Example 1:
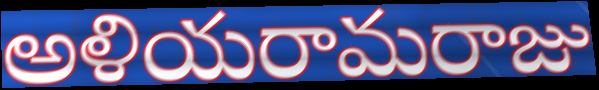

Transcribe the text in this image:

అళియరామరాజు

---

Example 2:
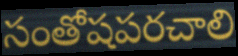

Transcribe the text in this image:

సంతోషపరచాలి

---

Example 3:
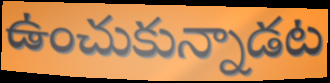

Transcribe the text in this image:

ఉంచుకున్నాడట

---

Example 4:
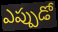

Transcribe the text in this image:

ఎప్పుడో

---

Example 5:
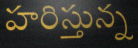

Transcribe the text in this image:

హరిస్తున్న